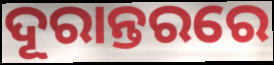
ଦୂରାନ୍ତରରେ